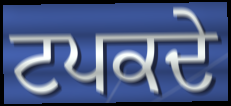
ਟਪਕਦੇ